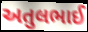
અતુલભાઈ